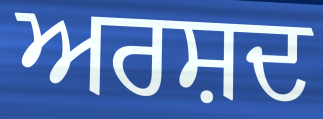
ਅਰਸ਼ਦ